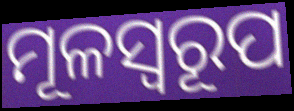
ମୂଳସ୍ୱରୂପ